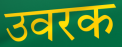
उवरक